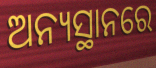
ଅନ୍ୟସ୍ଥାନରେ